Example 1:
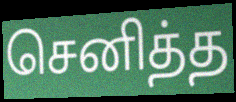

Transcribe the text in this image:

செனித்த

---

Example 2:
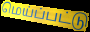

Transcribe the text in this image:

மெய்ப்பட்டு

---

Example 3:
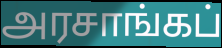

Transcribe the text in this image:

அரசாங்கப்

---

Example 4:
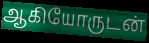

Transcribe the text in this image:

ஆகியோருடன்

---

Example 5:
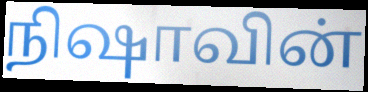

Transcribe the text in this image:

நிஷாவின்